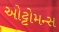
ઓટ્ટોમન્સ